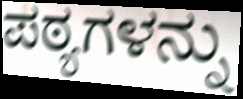
ಪಠ್ಯಗಳನ್ನು